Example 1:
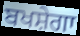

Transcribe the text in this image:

ਬਖਸ਼ੇਗਾ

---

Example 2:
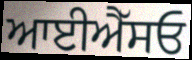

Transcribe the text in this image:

ਆਈਐੱਸਓ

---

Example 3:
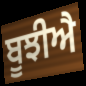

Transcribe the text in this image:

ਬੂਝੀਐ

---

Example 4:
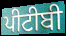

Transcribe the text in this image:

ਪੀਟੀਬੀ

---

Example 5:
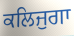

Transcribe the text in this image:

ਕਲਿਜੁਗਾ